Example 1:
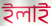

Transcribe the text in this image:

ইলাই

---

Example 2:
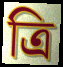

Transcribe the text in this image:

ত্ৰি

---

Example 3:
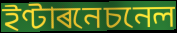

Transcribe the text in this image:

ইণ্টাৰনেচনেল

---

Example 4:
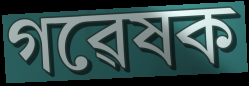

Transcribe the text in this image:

গৱেষক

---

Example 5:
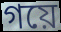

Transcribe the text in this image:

গয়ে